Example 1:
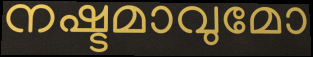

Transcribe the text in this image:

നഷ്ടമാവുമോ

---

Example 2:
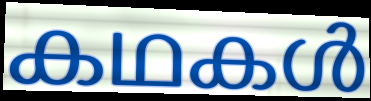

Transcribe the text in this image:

കഥകൾ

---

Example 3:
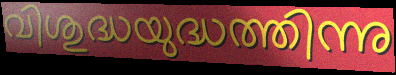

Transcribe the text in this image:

വിശുദ്ധയുദ്ധത്തിന്നു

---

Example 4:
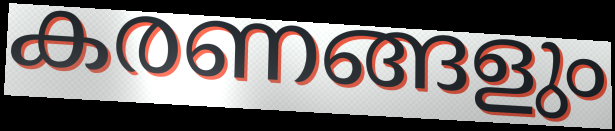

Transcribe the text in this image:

കരണങ്ങളും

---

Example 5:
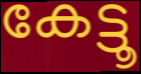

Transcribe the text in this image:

കേട്ടൂ